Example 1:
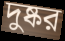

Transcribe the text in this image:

দুষ্কর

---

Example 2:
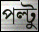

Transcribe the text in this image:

পল্টু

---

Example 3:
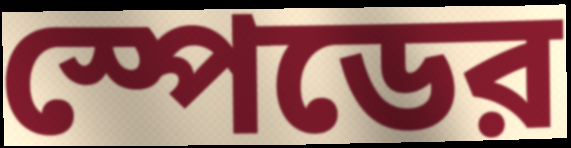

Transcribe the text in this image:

স্পেডের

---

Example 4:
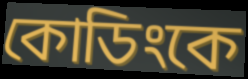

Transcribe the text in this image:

কোডিংকে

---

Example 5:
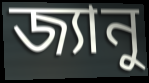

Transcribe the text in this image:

জ্যানু